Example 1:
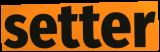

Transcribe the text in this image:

setter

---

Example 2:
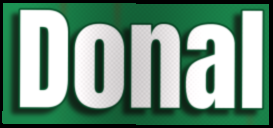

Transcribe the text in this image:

Donal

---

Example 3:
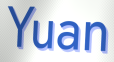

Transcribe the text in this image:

Yuan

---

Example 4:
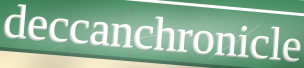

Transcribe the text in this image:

deccanchronicle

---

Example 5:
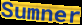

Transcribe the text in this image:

Sumner